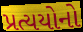
પ્રત્યયોનો